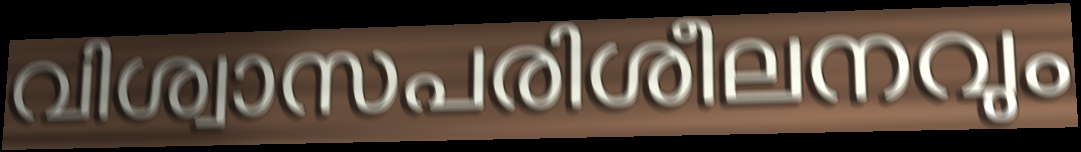
വിശ്വാസപരിശീലനവും